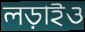
লড়াইও